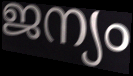
ജന്യം